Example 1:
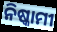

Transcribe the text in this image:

ନିଷ୍କାମୀ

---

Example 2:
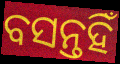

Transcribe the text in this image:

ବସନ୍ତହିଁ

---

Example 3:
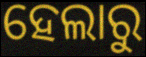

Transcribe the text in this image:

ହେଲାରୁ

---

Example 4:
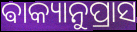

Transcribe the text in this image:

ଵାକ୍ୟାନୁପ୍ରାସ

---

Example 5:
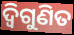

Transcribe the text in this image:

ଦ୍ଵିଗୁଣିତ